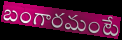
బంగారమంటే